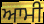
ਆਮੀ